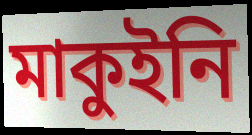
মাকুইনি